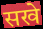
सखे